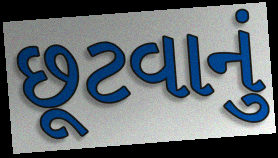
છૂટવાનું